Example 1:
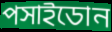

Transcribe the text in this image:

পসাইডোন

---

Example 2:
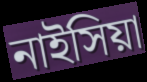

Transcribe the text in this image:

নাইসিয়া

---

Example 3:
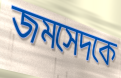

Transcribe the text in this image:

জমসেদকে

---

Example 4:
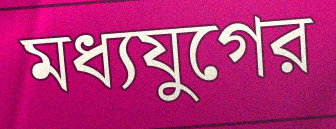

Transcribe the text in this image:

মধ্যযুগের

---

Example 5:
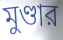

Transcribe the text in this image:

মুণ্ডার